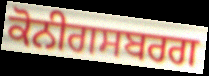
ਕੋਨੀਗਸਬਰਗ